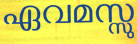
ഏവമസ്സു